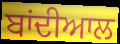
ਬਾਂਦੀਆਲ